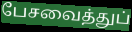
பேசவைத்துப்